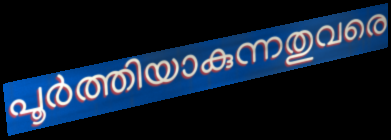
പൂർത്തിയാകുന്നതുവരെ